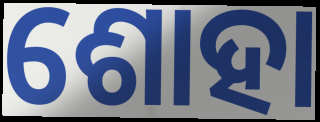
ଶୋହା